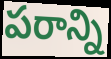
పరాన్ని